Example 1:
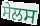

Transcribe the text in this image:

ਸੇਲਸ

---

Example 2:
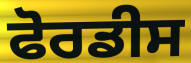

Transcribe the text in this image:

ਫੋਰਡੀਸ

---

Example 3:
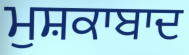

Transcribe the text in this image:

ਮੁਸ਼ਕਾਬਾਦ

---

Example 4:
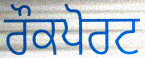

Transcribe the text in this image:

ਰੌਕਪੋਰਟ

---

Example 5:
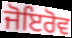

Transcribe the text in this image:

ਜੋਇਰੋਵ